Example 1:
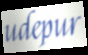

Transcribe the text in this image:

udepur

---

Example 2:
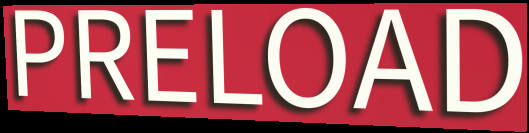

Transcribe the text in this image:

PRELOAD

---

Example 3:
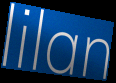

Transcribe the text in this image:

lilan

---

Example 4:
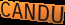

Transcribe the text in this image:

CANDU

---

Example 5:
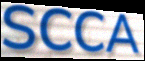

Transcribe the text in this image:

SCCA